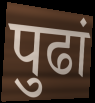
पुढां